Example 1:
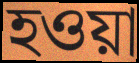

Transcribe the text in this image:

হওয়া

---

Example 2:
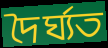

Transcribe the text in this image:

দৈৰ্ঘ্যত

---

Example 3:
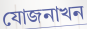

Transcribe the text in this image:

যোজনাখন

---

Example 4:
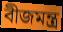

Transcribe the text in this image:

বীজমন্ত্ৰ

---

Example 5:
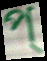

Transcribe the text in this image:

প্